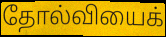
தோல்வியைக்